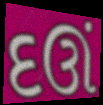
દઊં